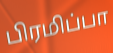
பிரமிப்பா